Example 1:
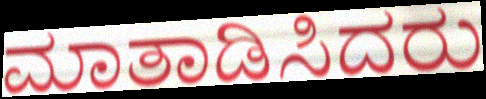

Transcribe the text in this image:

ಮಾತಾಡಿಸಿದರು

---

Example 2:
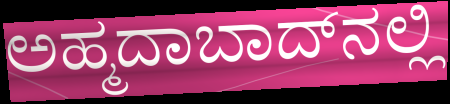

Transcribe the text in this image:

ಅಹ್ಮದಾಬಾದ್‍ನಲ್ಲಿ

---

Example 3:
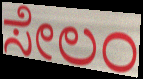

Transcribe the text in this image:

ಸೇಲಂ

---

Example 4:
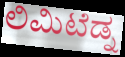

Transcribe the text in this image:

ಲಿಮಿಟೆಡ್ನ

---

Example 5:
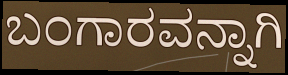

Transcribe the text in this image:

ಬಂಗಾರವನ್ನಾಗಿ